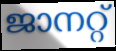
ജാനറ്റ്